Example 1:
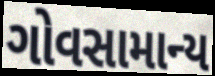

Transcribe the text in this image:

ગોવસામાન્ય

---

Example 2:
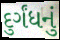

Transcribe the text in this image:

દુર્ગંધનું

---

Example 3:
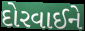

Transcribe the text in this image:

દોરવાઈને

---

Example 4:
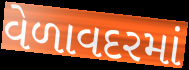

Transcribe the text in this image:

વેળાવદરમાં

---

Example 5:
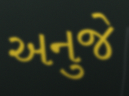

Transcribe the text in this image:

અનુજે